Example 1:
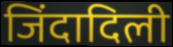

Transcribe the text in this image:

जिंदादिली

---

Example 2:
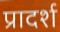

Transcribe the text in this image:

प्रादर्श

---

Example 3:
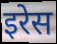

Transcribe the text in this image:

इरेस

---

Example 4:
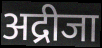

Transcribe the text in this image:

अद्रीजा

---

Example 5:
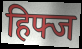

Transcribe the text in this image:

हिफ्ज